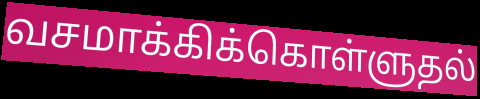
வசமாக்கிக்கொள்ளுதல்